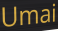
Umai